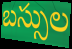
బస్సుల